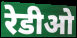
रेडीओ